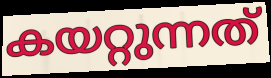
കയറ്റുന്നത്